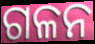
ଗଳନ